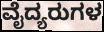
ವೈದ್ಯರುಗಳ